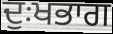
ਦੁਃਖਭਾਗ